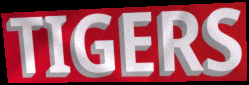
TIGERS